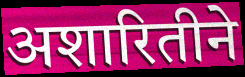
अशारितीने